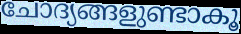
ചോദ്യങ്ങളുണ്ടാകൂ